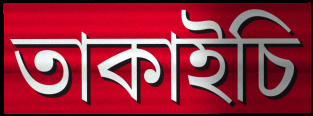
তাকাইচি